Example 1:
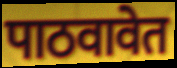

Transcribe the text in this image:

पाठवावेत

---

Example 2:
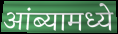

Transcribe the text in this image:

आंब्यामध्ये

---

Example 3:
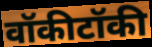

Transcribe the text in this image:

वॉकीटॉकी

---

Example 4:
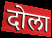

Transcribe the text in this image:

दोला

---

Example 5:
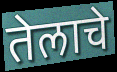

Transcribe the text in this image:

तेलाचे